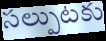
సల్పుటకు